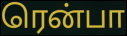
ரென்பா